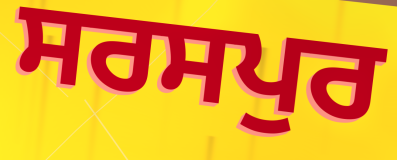
ਸਰਸਪੁਰ